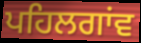
ਪਹਿਲਗਾਂਵ